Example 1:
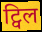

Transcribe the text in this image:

ट्विल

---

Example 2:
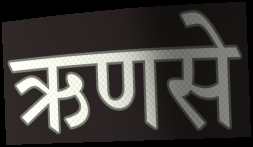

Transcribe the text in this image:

ऋणसे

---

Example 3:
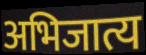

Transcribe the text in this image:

अभिजात्य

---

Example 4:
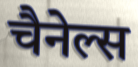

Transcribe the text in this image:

चैनेल्स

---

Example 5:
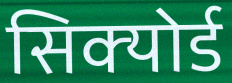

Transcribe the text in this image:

सिक्‍योर्ड